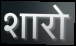
शारो